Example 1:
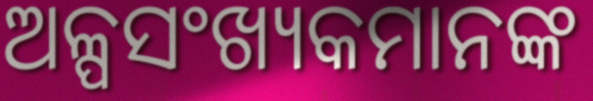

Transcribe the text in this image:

ଅଳ୍ପସଂଖ୍ୟକମାନଙ୍କ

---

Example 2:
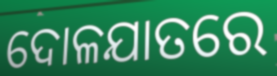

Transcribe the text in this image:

ଦୋଳଯାତରେ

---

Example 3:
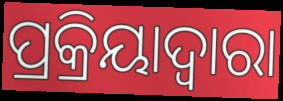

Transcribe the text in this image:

ପ୍ରକ୍ରିୟାଦ୍ଵାରା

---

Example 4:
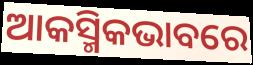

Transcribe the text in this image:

ଆକସ୍ମିକଭାବରେ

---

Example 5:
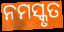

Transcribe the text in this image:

ନମସ୍କୃତ